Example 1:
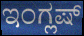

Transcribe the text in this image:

ಇಂಗ್ಲಷ್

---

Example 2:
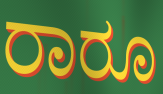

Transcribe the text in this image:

ರಾರೂ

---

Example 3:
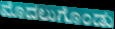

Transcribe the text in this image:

ಮೊದಲುಗೊಂಡು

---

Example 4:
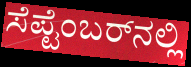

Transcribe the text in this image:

ಸೆಪ್ಟೆಂಬರ್‌ನಲ್ಲಿ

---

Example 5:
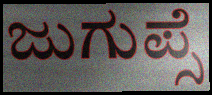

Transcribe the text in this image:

ಜುಗುಪ್ಸೆ